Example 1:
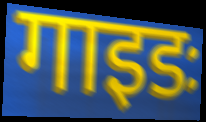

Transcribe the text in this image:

गाइडः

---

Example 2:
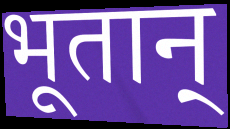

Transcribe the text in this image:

भूतान्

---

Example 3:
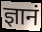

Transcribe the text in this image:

ज्ञानं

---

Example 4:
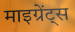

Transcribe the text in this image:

माइग्रेंट्स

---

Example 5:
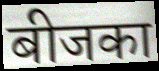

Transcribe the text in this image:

बीजका